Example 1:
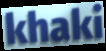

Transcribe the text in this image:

khaki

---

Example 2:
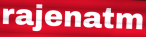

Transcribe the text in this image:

rajenatm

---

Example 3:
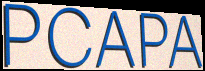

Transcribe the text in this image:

PCAPA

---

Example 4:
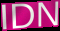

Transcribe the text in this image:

IDN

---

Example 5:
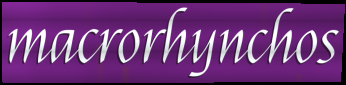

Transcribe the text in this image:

macrorhynchos